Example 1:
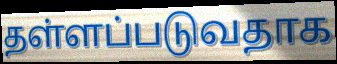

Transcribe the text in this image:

தள்ளப்படுவதாக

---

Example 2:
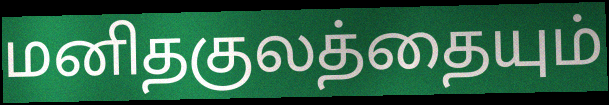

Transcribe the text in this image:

மனிதகுலத்தையும்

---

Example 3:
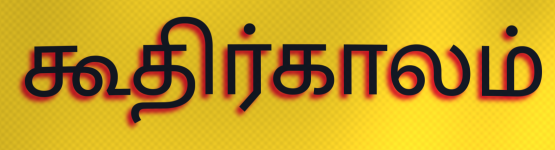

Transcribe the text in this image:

கூதிர்காலம்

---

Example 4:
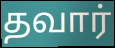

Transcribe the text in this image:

தவார்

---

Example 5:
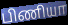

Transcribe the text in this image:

பிணியா